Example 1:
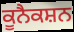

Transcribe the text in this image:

ਕੂਨੈਕਸ਼ਨ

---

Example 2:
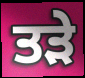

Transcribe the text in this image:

ਤੜੇ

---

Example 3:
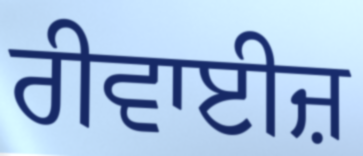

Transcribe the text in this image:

ਰੀਵਾਈਜ਼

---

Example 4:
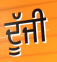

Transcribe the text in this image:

ਦੂੱਜੀ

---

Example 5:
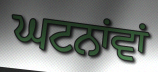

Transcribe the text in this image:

ਘਟਨਾਂਵਾਂ